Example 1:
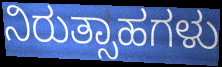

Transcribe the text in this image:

ನಿರುತ್ಸಾಹಗಳು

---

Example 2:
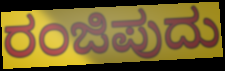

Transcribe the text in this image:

ರಂಜಿಪುದು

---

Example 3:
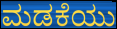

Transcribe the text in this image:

ಮಡಕೆಯು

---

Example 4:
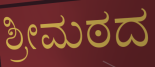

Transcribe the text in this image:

ಶ್ರೀಮಠದ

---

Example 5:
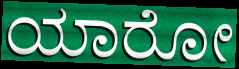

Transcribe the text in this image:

ಯಾರೋ